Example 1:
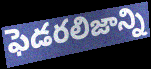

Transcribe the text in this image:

ఫెడరలిజాన్ని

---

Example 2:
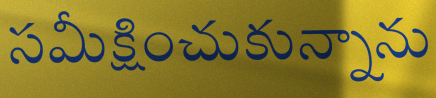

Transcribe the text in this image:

సమీక్షించుకున్నాను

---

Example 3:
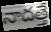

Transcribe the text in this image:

నాదత్తే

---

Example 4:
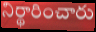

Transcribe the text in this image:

నిర్థారించారు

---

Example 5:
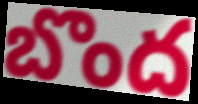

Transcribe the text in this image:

బొంద